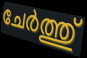
ചേർത്തു്